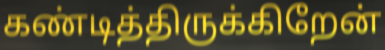
கண்டித்திருக்கிறேன்